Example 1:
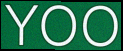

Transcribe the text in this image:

YOO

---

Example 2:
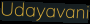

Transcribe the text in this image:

Udayavani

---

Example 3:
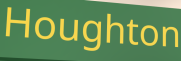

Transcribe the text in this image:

Houghton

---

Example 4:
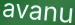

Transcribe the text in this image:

avanu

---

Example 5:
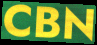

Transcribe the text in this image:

CBN